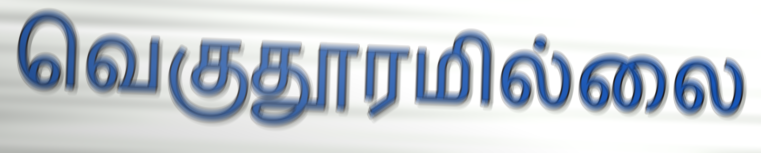
வெகுதூரமில்லை